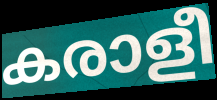
കരാളീ